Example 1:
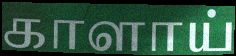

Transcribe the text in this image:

காளாய்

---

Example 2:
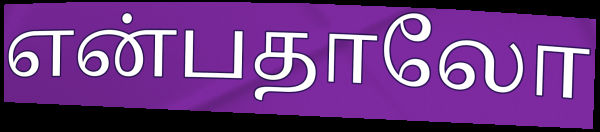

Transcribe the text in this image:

என்பதாலோ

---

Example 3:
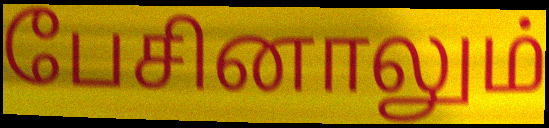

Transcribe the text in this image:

பேசினாலும்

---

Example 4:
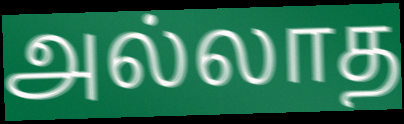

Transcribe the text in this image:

அல்லாத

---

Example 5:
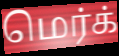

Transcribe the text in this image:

மெர்க்